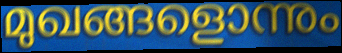
മുഖങ്ങളൊന്നും